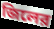
জিলের